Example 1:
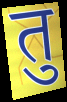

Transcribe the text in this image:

तु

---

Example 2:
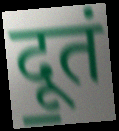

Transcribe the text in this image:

दू॒तं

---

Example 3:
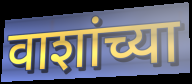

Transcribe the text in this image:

वाशांच्या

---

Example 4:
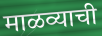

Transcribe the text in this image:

माळव्याची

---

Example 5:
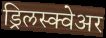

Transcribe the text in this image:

ड्रिलस्क्वेअर